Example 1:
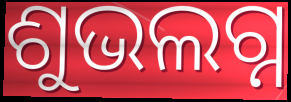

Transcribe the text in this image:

ଶୁଭଲଗ୍ନ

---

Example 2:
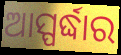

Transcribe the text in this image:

ଆସ୍ପର୍ଦ୍ଧାର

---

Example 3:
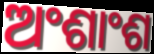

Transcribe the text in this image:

ଅଂଶାଂଶ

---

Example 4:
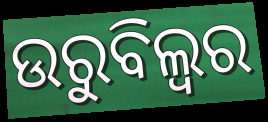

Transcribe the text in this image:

ଉରୁବିଲ୍ଵର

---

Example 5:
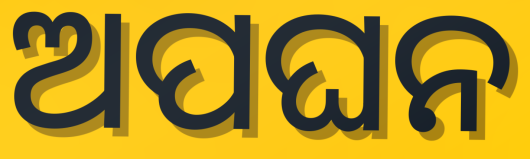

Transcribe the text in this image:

ଅପଘନ